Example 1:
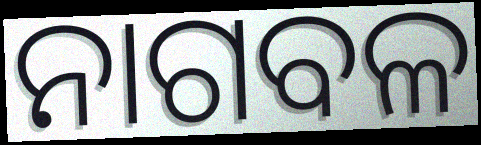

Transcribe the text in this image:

ନାଗବଳ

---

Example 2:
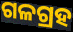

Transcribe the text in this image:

ଗଳଗ୍ରହ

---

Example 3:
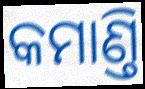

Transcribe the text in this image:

କମାଣ୍ତି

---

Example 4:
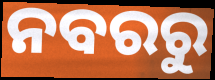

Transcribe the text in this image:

ନବରରୁ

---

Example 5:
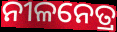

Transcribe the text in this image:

ନୀଳନେତ୍ର